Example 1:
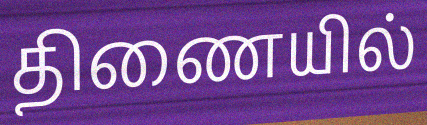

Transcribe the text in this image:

திணையில்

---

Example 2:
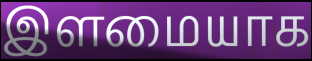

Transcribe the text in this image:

இளமையாக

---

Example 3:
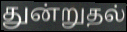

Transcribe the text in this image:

துன்றுதல்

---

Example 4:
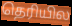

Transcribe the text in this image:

தெரியில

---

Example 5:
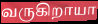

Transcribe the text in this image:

வருகிறாயா